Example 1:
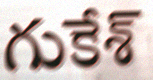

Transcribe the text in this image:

గుకేశ్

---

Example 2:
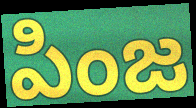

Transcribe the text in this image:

పింజ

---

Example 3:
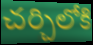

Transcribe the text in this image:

చర్చిలోకి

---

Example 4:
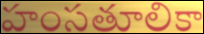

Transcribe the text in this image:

హంసతూలికా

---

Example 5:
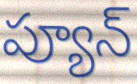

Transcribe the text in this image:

ప్యూన్